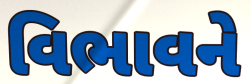
વિભાવને